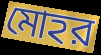
মোহর